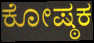
ಕೋಷ್ಠಕ